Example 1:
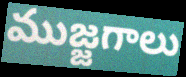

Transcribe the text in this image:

ముజ్జగాలు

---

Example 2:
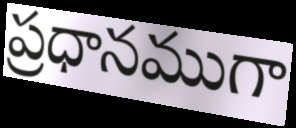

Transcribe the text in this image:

ప్రధానముగా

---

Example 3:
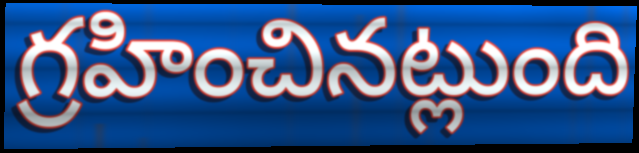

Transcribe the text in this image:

గ్రహించినట్లుంది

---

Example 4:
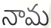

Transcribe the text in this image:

నామ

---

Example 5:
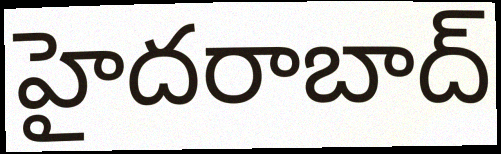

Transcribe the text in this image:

హైదరాబాద్